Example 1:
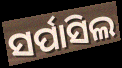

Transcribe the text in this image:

ସର୍ପାସିଲ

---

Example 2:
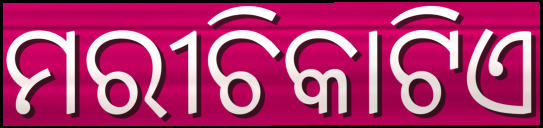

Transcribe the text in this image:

ମରୀଚିକାଟିଏ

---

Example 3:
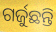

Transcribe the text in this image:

ଗର୍ଜୁଛନ୍ତି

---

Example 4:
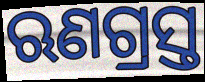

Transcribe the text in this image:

ଋଣଗ୍ରସ୍ତ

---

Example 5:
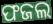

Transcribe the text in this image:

ଫଜଲ